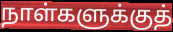
நாள்களுக்குத்